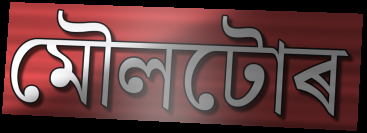
মৌলটোৰ